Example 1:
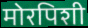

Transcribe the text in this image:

मोरपिशी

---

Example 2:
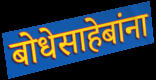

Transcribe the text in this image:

बोधेसाहेबांना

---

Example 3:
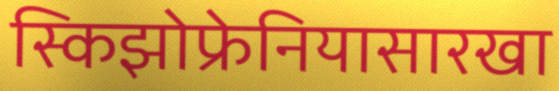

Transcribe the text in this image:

स्किझोफ्रेनियासारखा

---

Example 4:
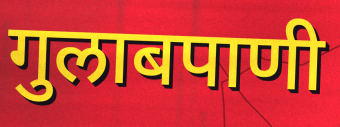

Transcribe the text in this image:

गुलाबपाणी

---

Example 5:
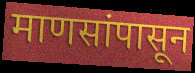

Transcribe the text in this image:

माणसांपासून